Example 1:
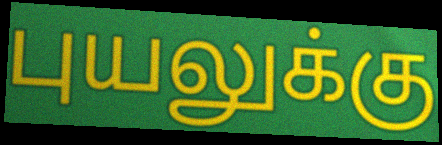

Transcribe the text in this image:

புயலுக்கு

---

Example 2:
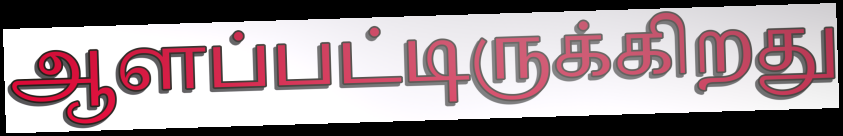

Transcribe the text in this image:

ஆளப்பட்டிருக்கிறது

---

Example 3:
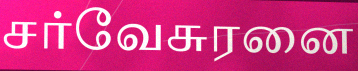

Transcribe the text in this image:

சர்வேசுரனை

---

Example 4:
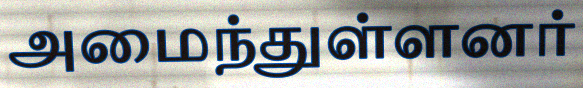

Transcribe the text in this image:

அமைந்துள்ளனர்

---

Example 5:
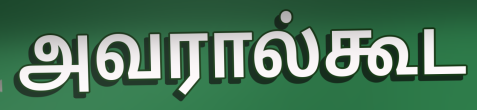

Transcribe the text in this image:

அவரால்கூட